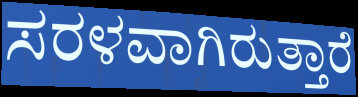
ಸರಳವಾಗಿರುತ್ತಾರೆ